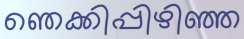
ഞെക്കിപ്പിഴിഞ്ഞ